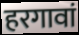
हरगावां